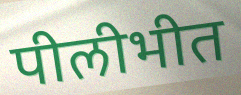
पीलीभीत